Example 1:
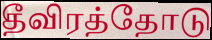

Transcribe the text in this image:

தீவிரத்தோடு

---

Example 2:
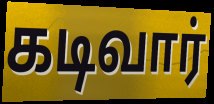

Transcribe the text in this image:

கடிவார்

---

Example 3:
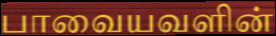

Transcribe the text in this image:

பாவையவளின்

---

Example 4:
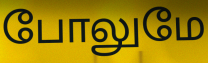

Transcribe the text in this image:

போலுமே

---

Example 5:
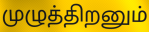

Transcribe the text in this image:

முழுத்திறனும்